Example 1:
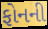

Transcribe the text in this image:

ફોનની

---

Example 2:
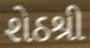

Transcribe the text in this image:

શેઠશ્રી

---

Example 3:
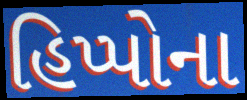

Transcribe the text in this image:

હિપ્પોના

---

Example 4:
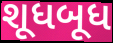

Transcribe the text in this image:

શૂધબૂધ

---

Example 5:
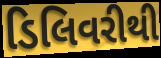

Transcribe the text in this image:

ડિલિવરીથી